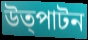
উত্পাটন